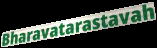
Bharavatarastavah